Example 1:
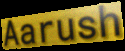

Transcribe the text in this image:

Aarush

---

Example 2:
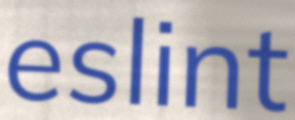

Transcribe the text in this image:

eslint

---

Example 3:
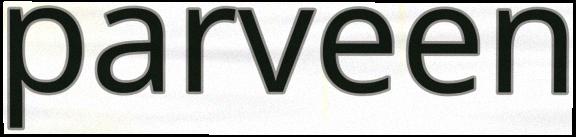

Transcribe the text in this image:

parveen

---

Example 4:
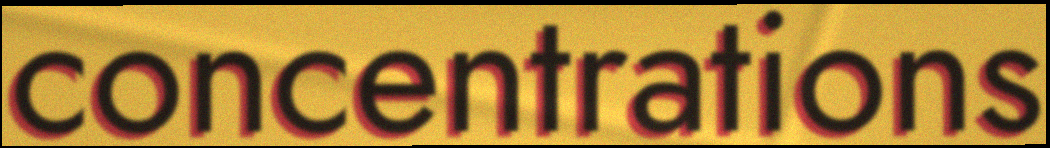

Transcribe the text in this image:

concentrations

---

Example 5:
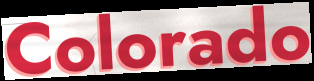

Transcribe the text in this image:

Colorado